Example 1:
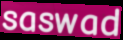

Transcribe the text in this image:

saswad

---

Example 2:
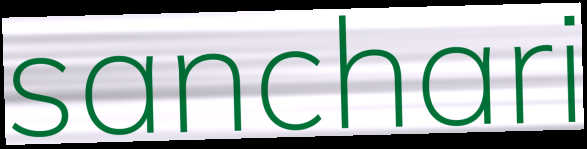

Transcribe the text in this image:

sanchari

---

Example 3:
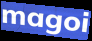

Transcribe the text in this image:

magoi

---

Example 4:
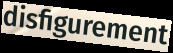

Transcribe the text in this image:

disfigurement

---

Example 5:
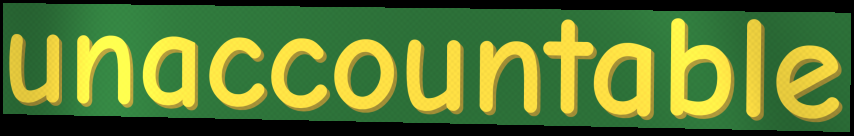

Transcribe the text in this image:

unaccountable